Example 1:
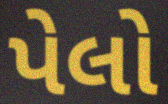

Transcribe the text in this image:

પેલો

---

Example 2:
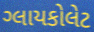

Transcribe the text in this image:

ગ્લાયકોલેટ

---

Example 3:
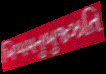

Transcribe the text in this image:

ખિપ્પમનુબુજ્ઝતિ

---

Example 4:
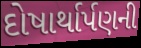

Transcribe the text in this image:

દોષાર્થાર્પણની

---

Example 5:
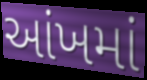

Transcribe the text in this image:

આંખમાં